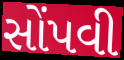
સોંપવી